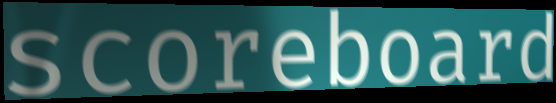
scoreboard